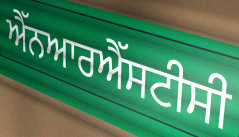
ਐੱਨਆਰਐੱਸਟੀਸੀ